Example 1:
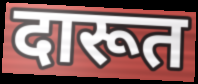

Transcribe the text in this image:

दारूत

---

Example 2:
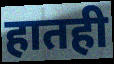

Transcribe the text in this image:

हातही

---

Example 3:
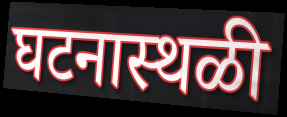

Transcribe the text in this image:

घटनास्थळी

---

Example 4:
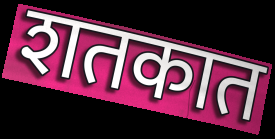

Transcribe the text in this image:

शतकात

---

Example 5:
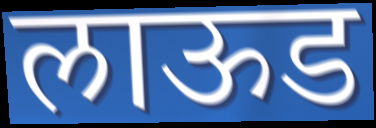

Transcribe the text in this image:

लाऊड